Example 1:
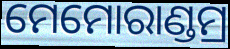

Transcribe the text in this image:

ମେମୋରାଣ୍ଡମ୍ର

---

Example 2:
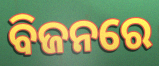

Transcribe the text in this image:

ବିଜନରେ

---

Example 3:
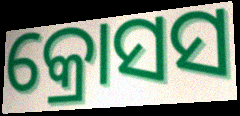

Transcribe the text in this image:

କ୍ରୋସସ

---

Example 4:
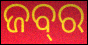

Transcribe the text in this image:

ଜବ୍‍ର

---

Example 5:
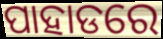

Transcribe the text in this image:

ପାହାଡରେ